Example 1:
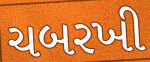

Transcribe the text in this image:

ચબરખી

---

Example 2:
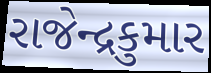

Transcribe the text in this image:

રાજેન્દ્રકુમાર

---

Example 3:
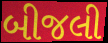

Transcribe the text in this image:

બીજલી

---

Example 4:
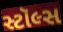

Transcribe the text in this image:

સ્ટૉલ્સ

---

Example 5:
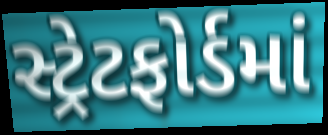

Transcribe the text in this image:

સ્ટ્રેટફોર્ડમાં